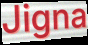
Jigna